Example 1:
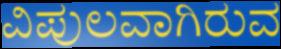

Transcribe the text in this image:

ವಿಪುಲವಾಗಿರುವ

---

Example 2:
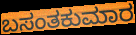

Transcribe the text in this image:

ಬಸಂತಕುಮಾರ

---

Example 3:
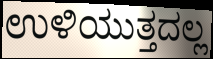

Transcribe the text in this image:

ಉಳಿಯುತ್ತದಲ್ಲ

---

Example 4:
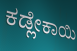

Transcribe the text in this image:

ಕಡ್ಲೇಕಾಯಿ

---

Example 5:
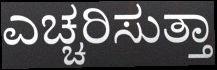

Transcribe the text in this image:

ಎಚ್ಚರಿಸುತ್ತಾ